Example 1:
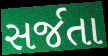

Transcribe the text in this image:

સર્જતા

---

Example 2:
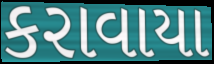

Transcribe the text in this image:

કરાવાયા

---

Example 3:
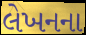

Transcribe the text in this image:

લેખનના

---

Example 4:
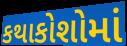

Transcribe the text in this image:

કથાકોશોમાં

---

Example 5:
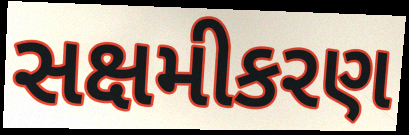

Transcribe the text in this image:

સક્ષમીકરણ